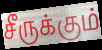
சீருக்கும்